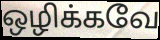
ஒழிக்கவே